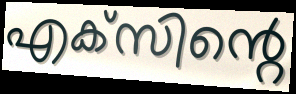
എക്‌സിന്റെ